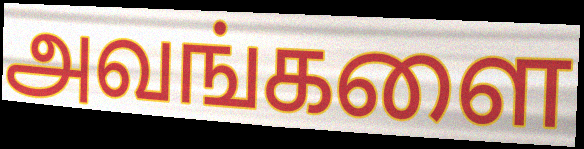
அவங்களை